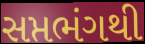
સપ્તભંગથી